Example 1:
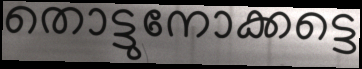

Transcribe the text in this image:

തൊട്ടുനോക്കട്ടെ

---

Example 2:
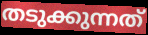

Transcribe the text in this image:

തടുക്കുന്നത്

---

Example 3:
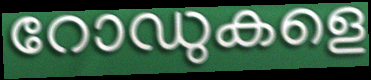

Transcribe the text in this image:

റോഡുകളെ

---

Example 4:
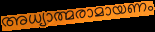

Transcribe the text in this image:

അധ്യാത്മരാമായണം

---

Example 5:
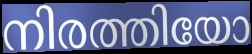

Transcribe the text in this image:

നിരത്തിയോ